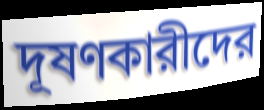
দূষণকারীদের